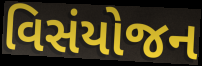
વિસંયોજન